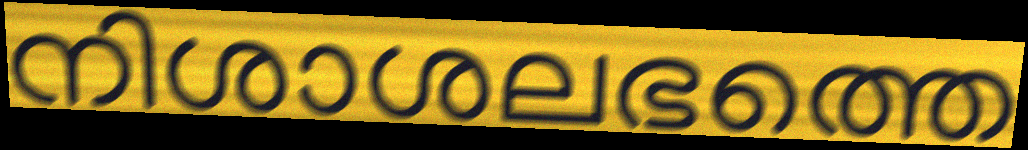
നിശാശലഭത്തെ